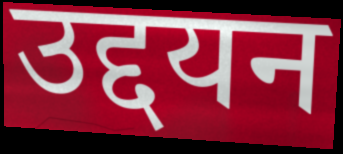
उद्दयन